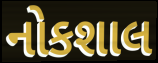
નોકશાલ